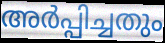
അർപ്പിച്ചതും